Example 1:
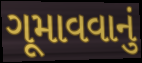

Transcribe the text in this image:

ગૂમાવવાનું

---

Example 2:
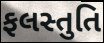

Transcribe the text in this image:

ફલસ્તુતિ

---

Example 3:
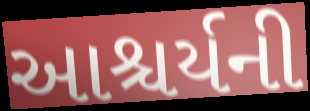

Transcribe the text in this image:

આશ્ચર્યની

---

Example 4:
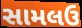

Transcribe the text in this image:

સામલઉ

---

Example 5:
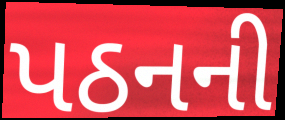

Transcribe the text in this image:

પઠનની